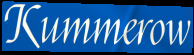
Kummerow